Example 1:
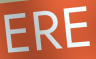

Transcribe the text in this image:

ERE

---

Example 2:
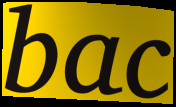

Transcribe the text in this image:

bac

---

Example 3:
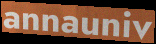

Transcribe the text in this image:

annauniv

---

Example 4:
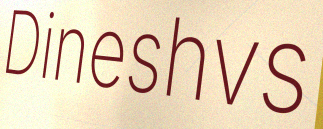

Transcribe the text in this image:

Dineshvs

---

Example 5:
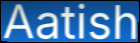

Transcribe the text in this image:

Aatish